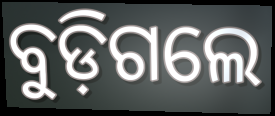
ବୁଡ଼ିଗଲେ